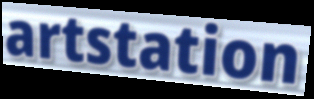
artstation